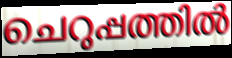
ചെറുപ്പത്തിൽ